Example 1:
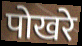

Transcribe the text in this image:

पोखरे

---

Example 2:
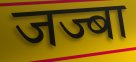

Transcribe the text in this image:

जज्बा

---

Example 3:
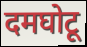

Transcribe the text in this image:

दमघोटू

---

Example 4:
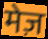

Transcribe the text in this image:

मेज़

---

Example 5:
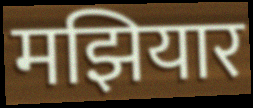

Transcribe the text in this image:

मझियार